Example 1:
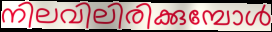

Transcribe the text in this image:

നിലവിലിരിക്കുമ്പോൾ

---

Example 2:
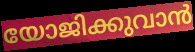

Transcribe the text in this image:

യോജിക്കുവാൻ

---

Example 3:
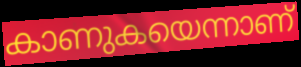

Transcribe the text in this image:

കാണുകയെന്നാണ്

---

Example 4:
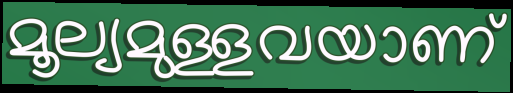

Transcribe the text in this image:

മൂല്യമുള്ളവയാണ്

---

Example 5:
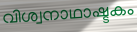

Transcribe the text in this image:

വിശ്വനാഥാഷ്ടകം